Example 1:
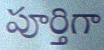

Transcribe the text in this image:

పూర్తిగా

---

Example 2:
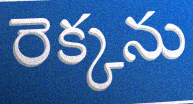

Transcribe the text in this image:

రెక్కను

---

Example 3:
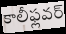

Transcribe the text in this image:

కాలీఫ్లవర్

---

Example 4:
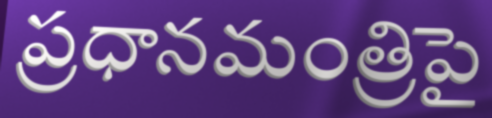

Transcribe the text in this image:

ప్రధానమంత్రిపై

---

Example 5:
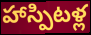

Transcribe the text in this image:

హాస్పిటళ్ల